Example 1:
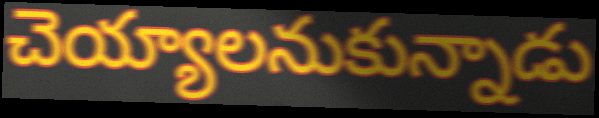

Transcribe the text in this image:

చెయ్యాలనుకున్నాడు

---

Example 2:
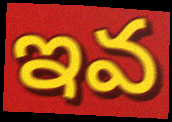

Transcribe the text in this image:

ఇవ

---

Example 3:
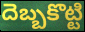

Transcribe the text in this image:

దెబ్బకొట్టి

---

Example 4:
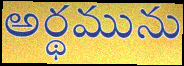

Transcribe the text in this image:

అర్థమును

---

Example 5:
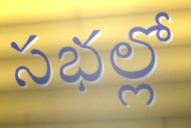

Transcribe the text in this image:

సభల్లో